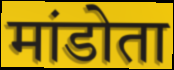
मांडोता